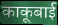
काकूबाई